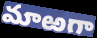
మాఱగా